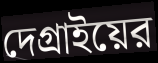
দেগ্রাইয়ের